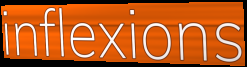
inflexions